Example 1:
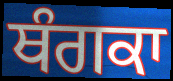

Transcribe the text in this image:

ਥੰਗਕਾ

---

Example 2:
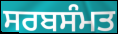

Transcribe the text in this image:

ਸਰਬਸੰਮਤ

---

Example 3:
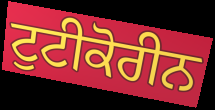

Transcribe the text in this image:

ਟੁਟੀਕੋਰੀਨ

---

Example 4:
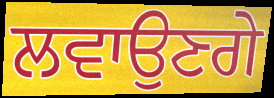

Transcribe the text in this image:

ਲਵਾਉਣਗੇ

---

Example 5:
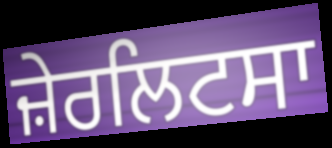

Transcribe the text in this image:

ਜ਼ੇਰਲਿਟਸਾ